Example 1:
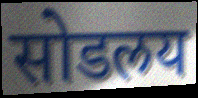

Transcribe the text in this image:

सोडलय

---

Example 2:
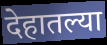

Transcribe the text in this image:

देहातल्या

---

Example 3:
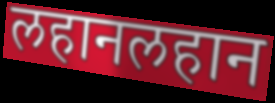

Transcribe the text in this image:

लहानलहान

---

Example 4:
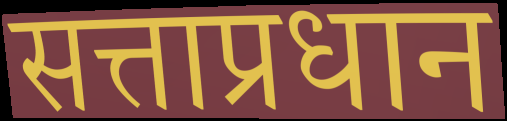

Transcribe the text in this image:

सत्ताप्रधान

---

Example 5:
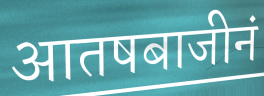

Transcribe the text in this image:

आतषबाजीनं